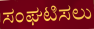
ಸಂಘಟಿಸಲು